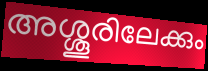
അശ്ശൂരിലേക്കും